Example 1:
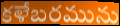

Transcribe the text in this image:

కళేబరమును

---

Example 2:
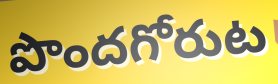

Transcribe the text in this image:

పొందగోరుట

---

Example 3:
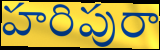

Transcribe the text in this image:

హరిపురా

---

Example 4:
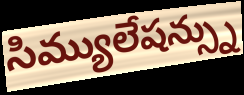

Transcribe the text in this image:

సిమ్యులేషన్స్ను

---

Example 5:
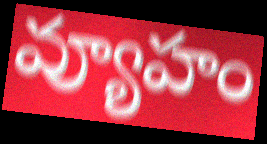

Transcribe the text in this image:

వ్యూహం